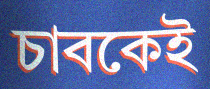
চাবকেই